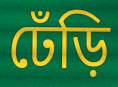
ঢেঁড়ি